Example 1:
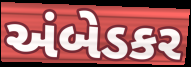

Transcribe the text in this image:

અંબેડકર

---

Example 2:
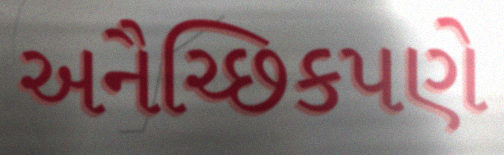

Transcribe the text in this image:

અનૈચ્છિકપણે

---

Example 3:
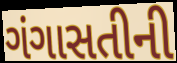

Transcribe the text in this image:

ગંગાસતીની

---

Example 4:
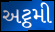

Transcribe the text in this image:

અટ્ઠમી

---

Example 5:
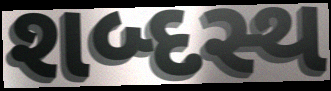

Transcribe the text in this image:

શબ્દસ્થ